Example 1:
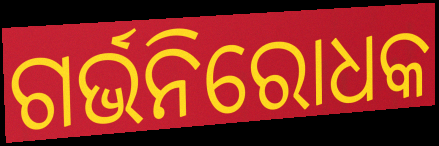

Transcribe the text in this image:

ଗର୍ଭନିରୋଧକ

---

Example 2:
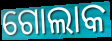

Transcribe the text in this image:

ଗୋଲାକ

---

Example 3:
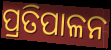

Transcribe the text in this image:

ପ୍ରତିପାଳନ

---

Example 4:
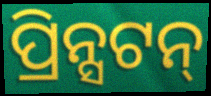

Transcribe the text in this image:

ପ୍ରିନ୍ସଟନ୍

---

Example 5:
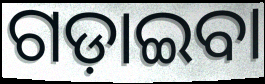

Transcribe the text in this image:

ଗଡ଼ାଇବା